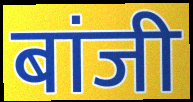
बांजी